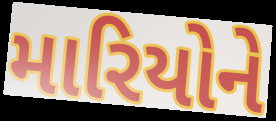
મારિયોને